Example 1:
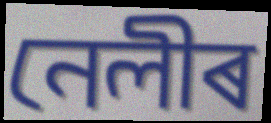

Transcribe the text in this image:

নেলীৰ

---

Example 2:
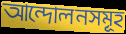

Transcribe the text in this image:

আন্দোলনসমূহ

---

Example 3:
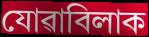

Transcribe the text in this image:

যোৱাবিলাক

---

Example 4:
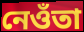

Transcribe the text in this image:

নেওঁতা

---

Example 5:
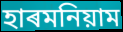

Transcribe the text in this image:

হাৰমনিয়াম